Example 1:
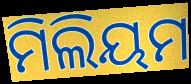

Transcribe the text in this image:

ମିଲିୟମ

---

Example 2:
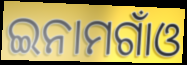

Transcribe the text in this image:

ଇନାମଗାଁଓ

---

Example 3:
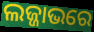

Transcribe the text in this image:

ଲଜ୍ଜାଭରେ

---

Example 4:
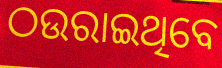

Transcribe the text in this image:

ଠଉରାଇଥିବେ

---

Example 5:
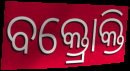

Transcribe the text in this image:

ବକ୍ତ୍ରୋକ୍ତି